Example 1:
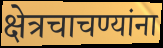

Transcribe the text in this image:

क्षेत्रचाचण्यांना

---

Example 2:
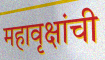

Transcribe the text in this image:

महावृक्षांची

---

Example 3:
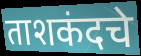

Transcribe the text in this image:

ताशकंदचे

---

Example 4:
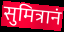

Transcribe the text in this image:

सुमित्रानं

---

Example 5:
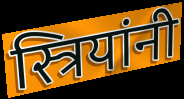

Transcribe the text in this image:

स्त्रियांनी